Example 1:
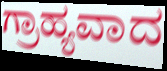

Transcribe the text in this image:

ಗ್ರಾಹ್ಯವಾದ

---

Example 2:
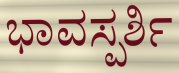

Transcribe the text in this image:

ಭಾವಸ್ಪರ್ಶಿ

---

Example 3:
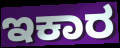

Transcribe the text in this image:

ಇಕಾರ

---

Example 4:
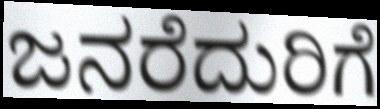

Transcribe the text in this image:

ಜನರೆದುರಿಗೆ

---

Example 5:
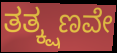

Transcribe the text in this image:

ತತ್ಕ್ಷಣವೇ